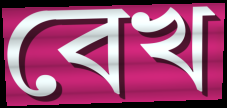
বেখ